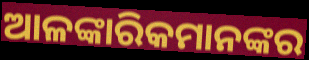
ଆଳଙ୍କାରିକମାନଙ୍କର